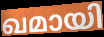
ഖമായി